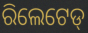
ରିଲେଟେଡ୍